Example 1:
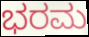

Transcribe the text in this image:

ಭರಮ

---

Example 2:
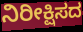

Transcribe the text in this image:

ನಿರೀಕ್ಷಿಸದ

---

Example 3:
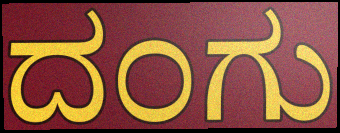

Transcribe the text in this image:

ದಂಗು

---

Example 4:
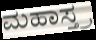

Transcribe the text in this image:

ಮಹಾಸ್ತ್ರ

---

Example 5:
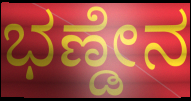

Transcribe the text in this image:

ಭಣ್ಡೇನ